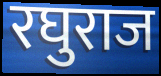
रघुराज